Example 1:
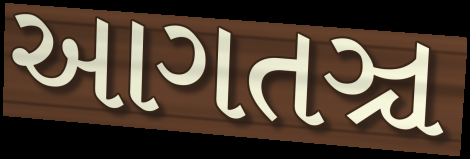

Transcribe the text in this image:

આગતઞ્ચ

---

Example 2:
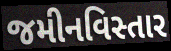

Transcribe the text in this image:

જમીનવિસ્તાર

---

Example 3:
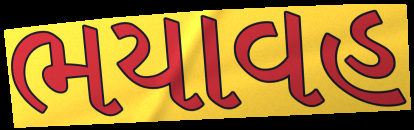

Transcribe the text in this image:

ભયાવહ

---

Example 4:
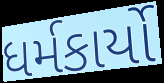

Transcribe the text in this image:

ધર્મકાર્યો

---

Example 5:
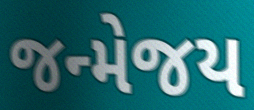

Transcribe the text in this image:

જન્મેજય